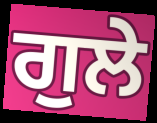
ਗੁਲੇ